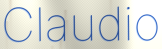
Claudio